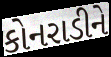
કોનરાડીને